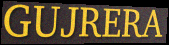
GUJRERA